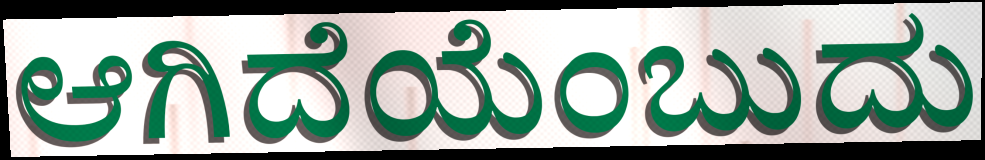
ಆಗಿದೆಯೆಂಬುದು